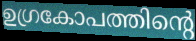
ഉഗ്രകോപത്തിന്റെ